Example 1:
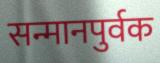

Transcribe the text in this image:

सन्मानपुर्वक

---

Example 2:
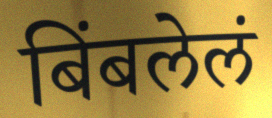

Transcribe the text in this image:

बिंबलेलं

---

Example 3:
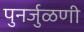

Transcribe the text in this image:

पुनर्जुळणी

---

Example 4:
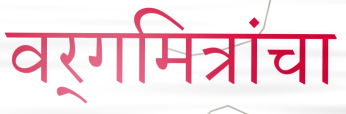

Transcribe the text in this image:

वर्गमित्रांचा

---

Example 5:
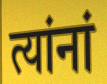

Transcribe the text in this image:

त्यांनां